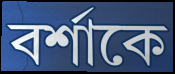
বর্শাকে